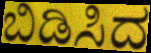
ಬಿಡಿಸಿದ